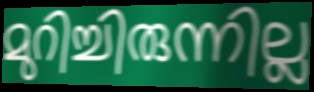
മുറിച്ചിരുന്നില്ല